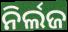
ନିର୍ଲଜ